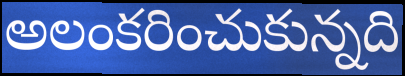
అలంకరించుకున్నది